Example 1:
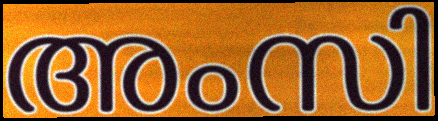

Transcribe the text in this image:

അംസി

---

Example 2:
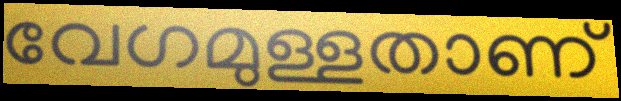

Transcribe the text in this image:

വേഗമുള്ളതാണ്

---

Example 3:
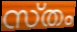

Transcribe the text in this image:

സ്‌തം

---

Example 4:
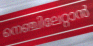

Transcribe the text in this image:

നെഞ്ചിലേറ്റാൻ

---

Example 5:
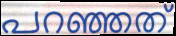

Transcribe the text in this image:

പറഞ്ഞത്